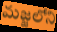
మజ్జలోని